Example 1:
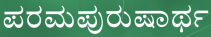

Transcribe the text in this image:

ಪರಮಪುರುಷಾರ್ಥ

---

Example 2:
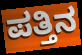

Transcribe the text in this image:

ಪತ್ತಿನ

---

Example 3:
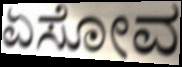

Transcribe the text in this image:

ಏಸೋವ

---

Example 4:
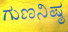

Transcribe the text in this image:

ಗುಣನಿಷ್ಠ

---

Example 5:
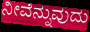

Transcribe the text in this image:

ನೀವೆನ್ನುವುದು